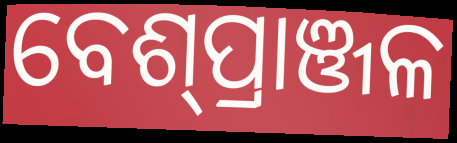
ବେଶ୍‌ପ୍ରାଞ୍ଜଳ